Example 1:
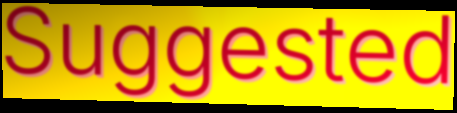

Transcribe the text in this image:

Suggested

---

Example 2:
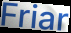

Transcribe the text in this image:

Friar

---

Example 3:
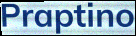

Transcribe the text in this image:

Praptino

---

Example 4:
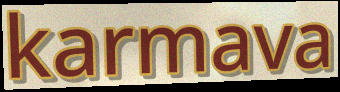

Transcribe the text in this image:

karmava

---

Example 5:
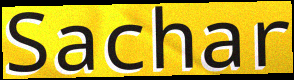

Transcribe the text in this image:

Sachar